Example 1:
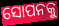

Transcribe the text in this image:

ସୋପନକୁ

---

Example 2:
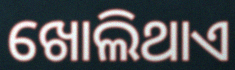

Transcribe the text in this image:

ଖୋଲିଥାଏ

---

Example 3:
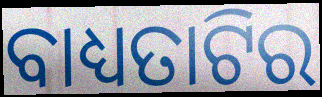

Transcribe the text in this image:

ବାଧ୍ୟତାଟିର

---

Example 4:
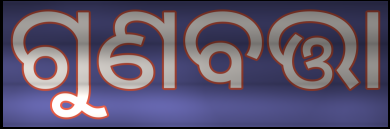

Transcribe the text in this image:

ଗୁଣବତ୍ତା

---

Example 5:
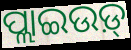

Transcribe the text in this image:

ପ୍ଲାଇଉଡ଼୍